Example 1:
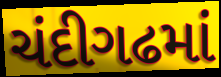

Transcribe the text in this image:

ચંદીગઢમાં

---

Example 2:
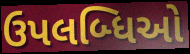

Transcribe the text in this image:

ઉપલબ્ધિઓ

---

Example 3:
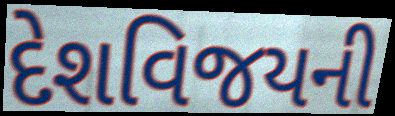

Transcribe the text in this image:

દેશવિજયની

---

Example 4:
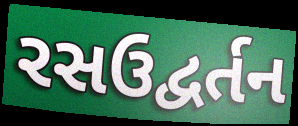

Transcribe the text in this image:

રસઉદ્વર્તન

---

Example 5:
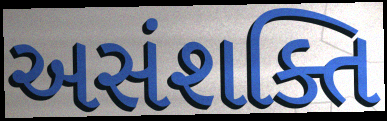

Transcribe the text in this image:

અસંશક્તિ